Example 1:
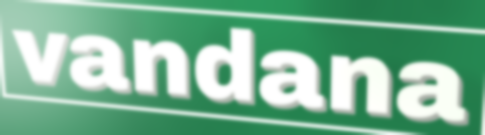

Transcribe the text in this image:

vandana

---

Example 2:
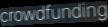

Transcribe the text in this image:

crowdfunding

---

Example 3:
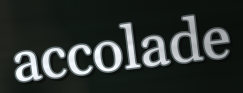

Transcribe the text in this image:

accolade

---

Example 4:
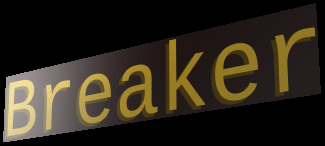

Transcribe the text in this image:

Breaker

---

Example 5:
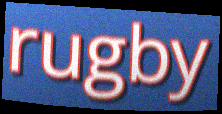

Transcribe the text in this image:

rugby